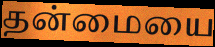
தன்மையை